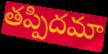
తప్పిదమా